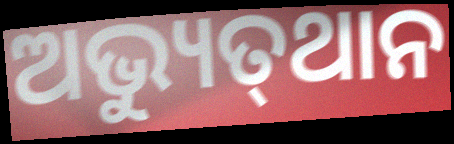
ଅଭ୍ୟୁତ୍‌ଥାନ